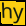
hy